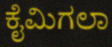
ಕೈಮಿಗಲಾ